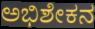
ಅಭಿಶೇಕನ